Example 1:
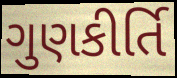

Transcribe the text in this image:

ગુણકીર્તિ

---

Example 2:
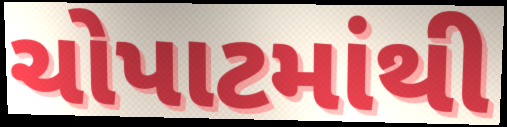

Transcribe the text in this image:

ચોપાટમાંથી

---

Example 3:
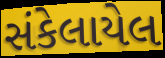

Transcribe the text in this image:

સંકેલાયેલ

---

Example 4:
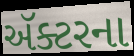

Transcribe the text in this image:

ઍક્ટરના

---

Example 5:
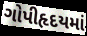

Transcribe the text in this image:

ગોપીહૃદયમાં